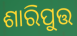
ଶାରିପୁତ୍ତ